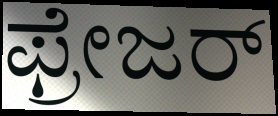
ಫ್ರೇಜರ್